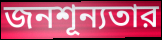
জনশূন্যতার